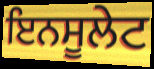
ਇਨਸੂਲੇਟ